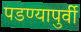
पडण्यापुर्वी